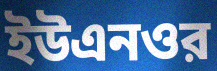
ইউএনওর